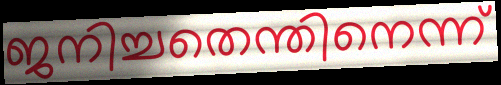
ജനിച്ചതെന്തിനെന്ന്